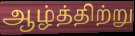
ஆழ்த்திற்று